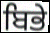
ਬਿਭੇ